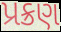
પ્રક્રણ